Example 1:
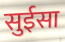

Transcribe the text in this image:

सुईसा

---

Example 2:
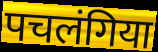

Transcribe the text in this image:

पचलंगिया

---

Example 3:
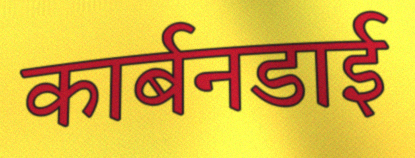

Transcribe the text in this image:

कार्बनडाई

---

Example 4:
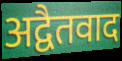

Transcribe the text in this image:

अद्वैतवाद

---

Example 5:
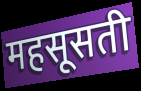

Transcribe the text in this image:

महसूसती